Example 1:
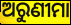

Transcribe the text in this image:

ଅରୁଣୀମା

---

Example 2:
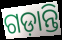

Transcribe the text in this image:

ଗଡ଼ାନ୍ତି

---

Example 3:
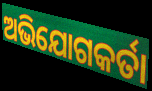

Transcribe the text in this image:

ଅଭିଯୋଗକର୍ତା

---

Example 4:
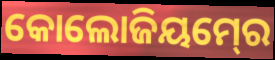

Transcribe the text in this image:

କୋଲୋଜିୟମ୍‍ରେ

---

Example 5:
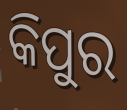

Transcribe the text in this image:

କିପୁର